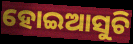
ହୋଇଆସୁଚି